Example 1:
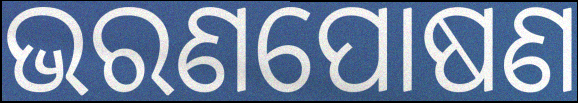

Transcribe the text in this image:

ଭରଣପୋଷଣ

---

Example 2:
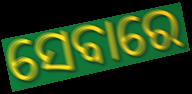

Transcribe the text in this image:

ସେବାରେ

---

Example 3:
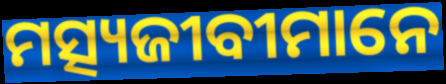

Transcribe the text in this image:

ମତ୍ସ୍ୟଜୀବୀମାନେ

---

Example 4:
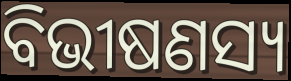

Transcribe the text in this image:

ବିଭୀଷଣସ୍ୟ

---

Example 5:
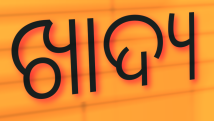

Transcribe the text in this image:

ଖାଦ୍ୟ